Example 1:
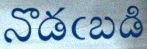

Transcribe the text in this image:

నొడఁబడి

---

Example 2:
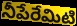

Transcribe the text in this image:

నీపేరేమిటి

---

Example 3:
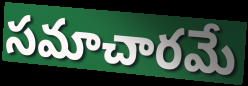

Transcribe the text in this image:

సమాచారమే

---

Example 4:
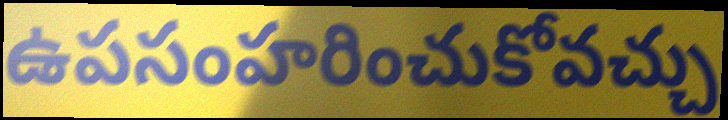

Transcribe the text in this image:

ఉపసంహరించుకోవచ్చు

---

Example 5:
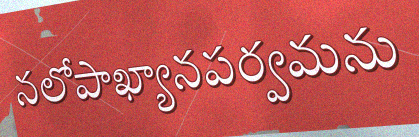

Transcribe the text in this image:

నలోపాఖ్యానపర్వమను